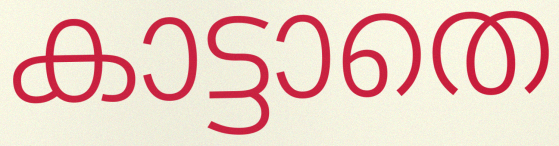
കാട്ടാതെ